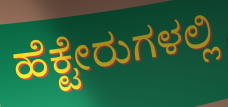
ಹೆಕ್ಟೇರುಗಳಲ್ಲಿ